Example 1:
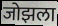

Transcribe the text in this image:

जोझला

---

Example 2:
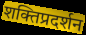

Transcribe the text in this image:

शक्तिप्रदर्शन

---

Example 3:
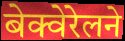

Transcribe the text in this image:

बेक्वेरेलने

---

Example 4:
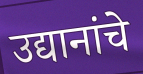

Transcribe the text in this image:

उद्यानांचे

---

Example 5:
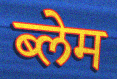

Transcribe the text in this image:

ब्लेम